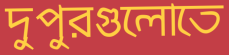
দুপুরগুলোতে